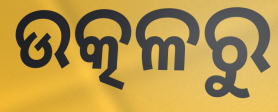
ଉତ୍କଳରୁ